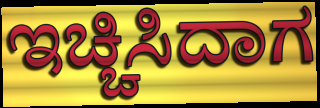
ಇಚ್ಚಿಸಿದಾಗ